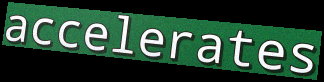
accelerates